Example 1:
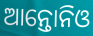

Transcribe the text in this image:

ଆନ୍ତୋନିଓ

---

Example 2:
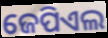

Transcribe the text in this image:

ଜେପିଏଲ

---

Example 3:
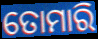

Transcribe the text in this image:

ତୋମାରି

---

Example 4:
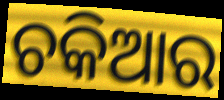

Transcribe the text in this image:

ଚକିଆର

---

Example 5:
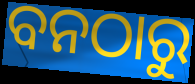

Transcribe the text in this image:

ବନଠାରୁ